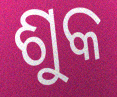
ଶୁକ